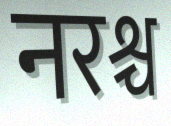
नरश्च